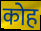
कोह